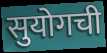
सुयोगची